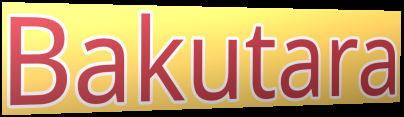
Bakutara